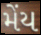
મેંય